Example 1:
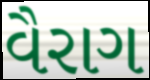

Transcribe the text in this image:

વૈરાગ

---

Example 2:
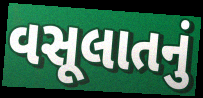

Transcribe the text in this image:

વસૂલાતનું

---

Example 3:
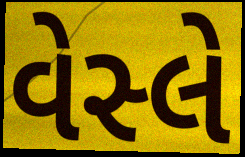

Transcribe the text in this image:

વેસ્લે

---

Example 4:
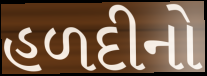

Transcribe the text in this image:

હળદીનો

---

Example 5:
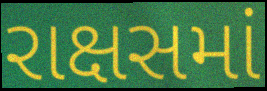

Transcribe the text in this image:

રાક્ષસમાં